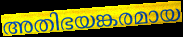
അതിഭയങ്കരമായ